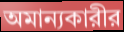
অমান্যকারীর